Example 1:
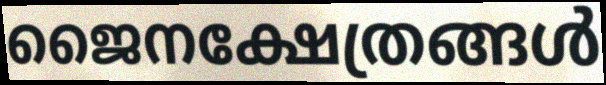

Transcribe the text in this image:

ജൈനക്ഷേത്രങ്ങൾ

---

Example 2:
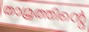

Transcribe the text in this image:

താമ്രത്തിന്റെ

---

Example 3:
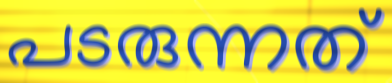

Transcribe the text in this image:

പടരുന്നത്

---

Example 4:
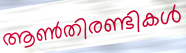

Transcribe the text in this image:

ആൺതിരണ്ടികൾ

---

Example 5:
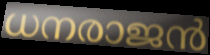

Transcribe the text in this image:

ധനരാജൻ